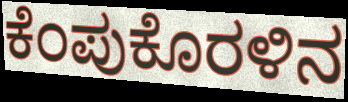
ಕೆಂಪುಕೊರಳಿನ